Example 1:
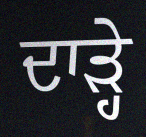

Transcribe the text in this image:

ਦਾੜ੍ਹੇ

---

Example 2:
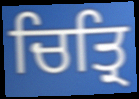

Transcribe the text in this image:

ਚਿਤ੍ਰਿ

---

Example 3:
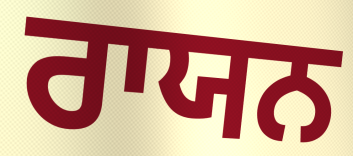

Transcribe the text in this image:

ਰਾਯਨ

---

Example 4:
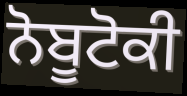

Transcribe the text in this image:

ਨੋਬੂਟੋਕੀ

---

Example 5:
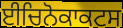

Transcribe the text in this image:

ਈਚਿਨੋਕਾਕਟਸ